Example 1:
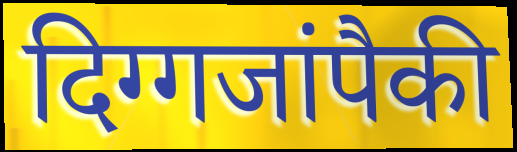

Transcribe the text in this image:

दिग्गजांपैकी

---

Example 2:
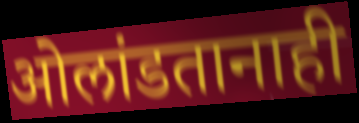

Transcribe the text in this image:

ओलांडतानाही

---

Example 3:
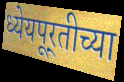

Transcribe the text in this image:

ध्येयपूर्तीच्या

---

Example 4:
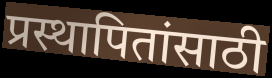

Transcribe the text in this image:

प्रस्थापितांसाठी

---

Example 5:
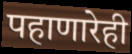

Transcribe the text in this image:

पहाणारेही